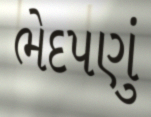
ભેદપણું